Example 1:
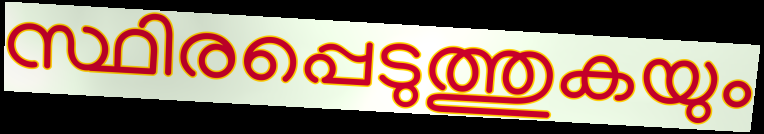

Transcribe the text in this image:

സ്ഥിരപ്പെടുത്തുകയും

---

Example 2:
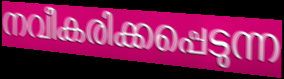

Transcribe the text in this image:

നവീകരിക്കപ്പെടുന്ന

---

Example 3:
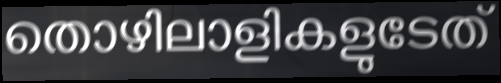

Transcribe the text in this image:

തൊഴിലാളികളുടേത്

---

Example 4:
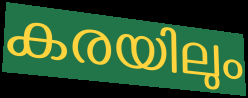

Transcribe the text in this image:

കരയിലും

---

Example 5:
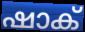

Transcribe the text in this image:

ഷാക്